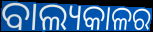
ବାଲ୍ୟକାଳର